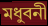
মধুবনী